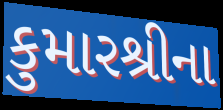
કુમારશ્રીના